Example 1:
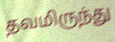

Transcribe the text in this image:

தவமிருந்து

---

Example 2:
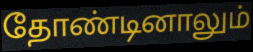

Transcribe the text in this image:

தோண்டினாலும்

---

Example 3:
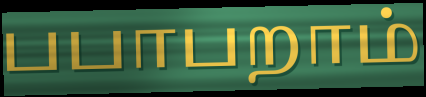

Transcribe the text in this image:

பபாபறாம்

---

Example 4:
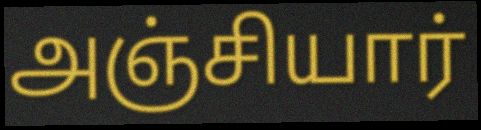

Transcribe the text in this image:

அஞ்சியார்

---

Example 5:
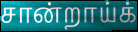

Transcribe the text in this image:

சான்றாய்க்